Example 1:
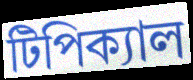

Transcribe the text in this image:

টিপিক্যাল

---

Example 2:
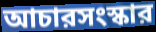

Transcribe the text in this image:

আচারসংস্কার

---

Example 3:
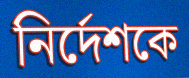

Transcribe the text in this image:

নির্দেশকে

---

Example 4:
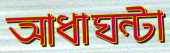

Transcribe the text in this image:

আধাঘন্টা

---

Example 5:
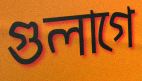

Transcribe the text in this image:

গুলাগে